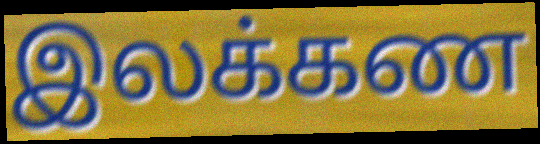
இலக்கண